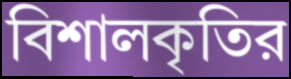
বিশালকৃতির